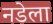
नडेला